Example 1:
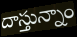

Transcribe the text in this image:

దాస్తున్నాం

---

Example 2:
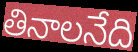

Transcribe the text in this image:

తినాలనేది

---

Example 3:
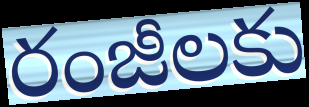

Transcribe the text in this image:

రంజీలకు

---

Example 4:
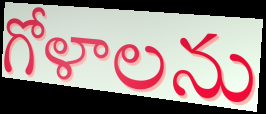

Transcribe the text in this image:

గోళాలను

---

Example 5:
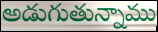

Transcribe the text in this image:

అడుగుతున్నాము